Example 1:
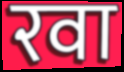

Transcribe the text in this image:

रवा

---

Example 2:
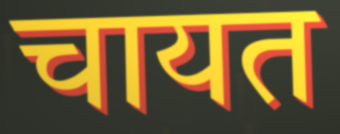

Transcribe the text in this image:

चायत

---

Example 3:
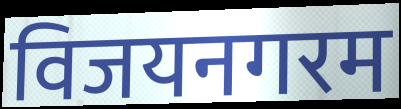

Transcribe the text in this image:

विजयनगरम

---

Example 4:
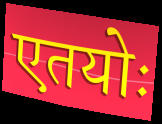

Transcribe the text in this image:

एतयोः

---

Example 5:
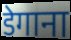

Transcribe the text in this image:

डेगाना